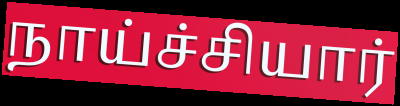
நாய்ச்சியார்